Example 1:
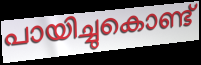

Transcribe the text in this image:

പായിച്ചുകൊണ്ട്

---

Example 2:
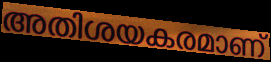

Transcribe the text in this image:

അതിശയകരമാണ്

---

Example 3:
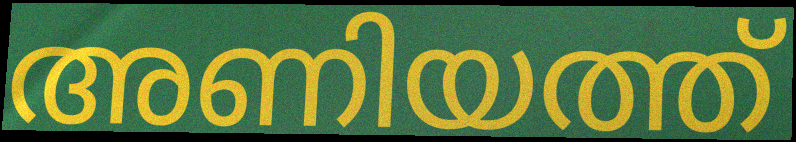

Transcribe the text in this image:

അണിയത്ത്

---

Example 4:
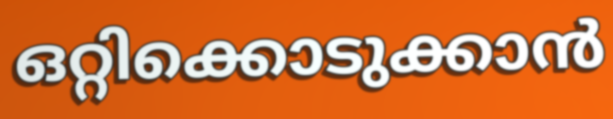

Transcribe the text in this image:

ഒറ്റിക്കൊടുക്കാൻ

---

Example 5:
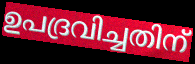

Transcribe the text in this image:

ഉപദ്രവിച്ചതിന്